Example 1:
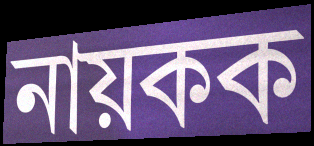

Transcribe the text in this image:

নায়কক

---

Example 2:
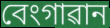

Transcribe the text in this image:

বেংগাৱান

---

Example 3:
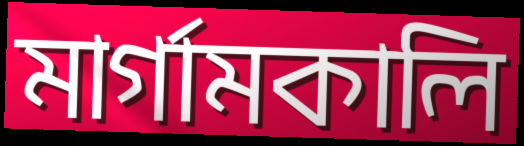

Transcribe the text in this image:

মাৰ্গামকালি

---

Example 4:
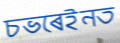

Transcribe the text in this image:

চভৰেইনত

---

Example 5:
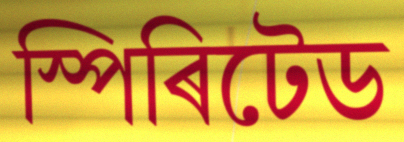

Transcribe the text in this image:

স্পিৰিটেড